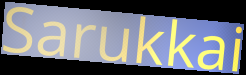
Sarukkai